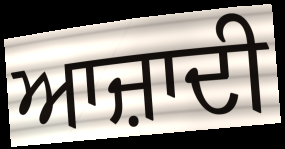
ਆਜ਼ਾਦੀ